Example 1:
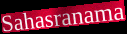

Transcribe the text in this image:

Sahasranama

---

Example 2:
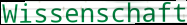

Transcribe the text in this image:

Wissenschaft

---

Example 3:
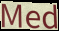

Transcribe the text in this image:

Med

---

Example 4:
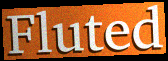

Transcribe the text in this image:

Fluted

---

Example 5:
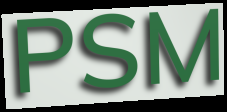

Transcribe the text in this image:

PSM